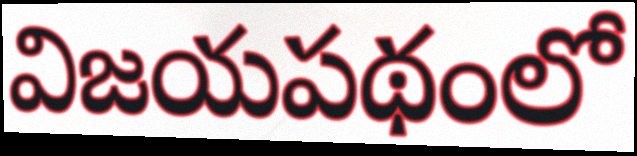
విజయపథంలో